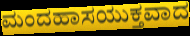
ಮಂದಹಾಸಯುಕ್ತವಾದ